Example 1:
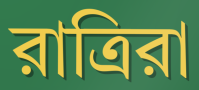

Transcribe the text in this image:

রাত্রিরা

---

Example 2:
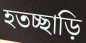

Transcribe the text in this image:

হতচ্ছাড়ি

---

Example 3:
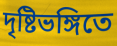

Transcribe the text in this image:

দৃষ্টিভঙ্গিতে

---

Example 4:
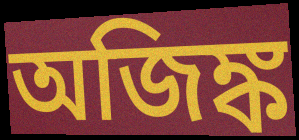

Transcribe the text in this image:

অজিঙ্ক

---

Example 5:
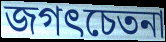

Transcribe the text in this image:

জগৎচেতনা